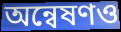
অন্বেষণও